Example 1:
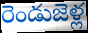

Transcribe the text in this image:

రెండుజెళ్ల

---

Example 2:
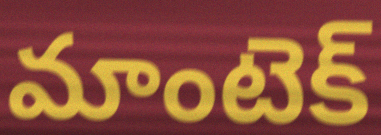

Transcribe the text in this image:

మాంటెక్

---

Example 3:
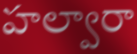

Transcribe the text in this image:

హల్వారా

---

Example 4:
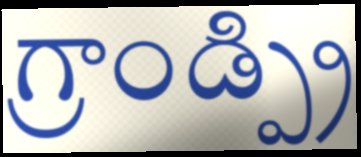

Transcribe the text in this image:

గ్రాండ్ప్రి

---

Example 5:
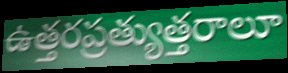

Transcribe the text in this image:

ఉత్తరప్రత్యుత్తరాలూ